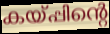
കയ്പ്പിന്റെ